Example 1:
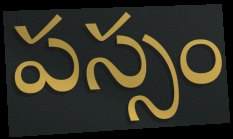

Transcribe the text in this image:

పస్సం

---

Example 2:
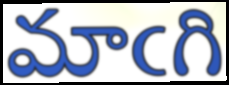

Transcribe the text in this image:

మాఁగి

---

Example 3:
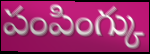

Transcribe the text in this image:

పంపింగ్కు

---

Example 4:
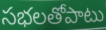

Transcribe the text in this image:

సభలతోపాటు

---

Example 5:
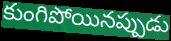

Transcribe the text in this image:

కుంగిపోయినప్పుడు